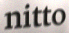
nitto